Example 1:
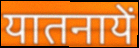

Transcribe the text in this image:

यातनायें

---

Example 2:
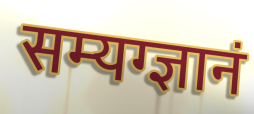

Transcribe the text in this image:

सम्यग्ज्ञानं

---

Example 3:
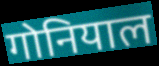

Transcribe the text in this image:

गोनियाल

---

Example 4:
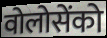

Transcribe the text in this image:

वोलोसेंको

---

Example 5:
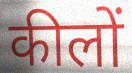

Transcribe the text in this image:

कीलों